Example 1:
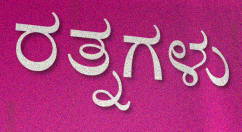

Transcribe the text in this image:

ರತ್ನಗಳು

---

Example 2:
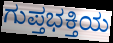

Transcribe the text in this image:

ಗುಪ್ತಭಕ್ತಿಯ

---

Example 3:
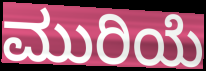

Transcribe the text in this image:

ಮುರಿಯೆ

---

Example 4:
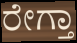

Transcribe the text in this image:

ರೇಗ್ತಾ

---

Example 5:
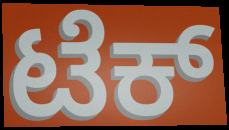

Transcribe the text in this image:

ಟೆಕ್